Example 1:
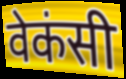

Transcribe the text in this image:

वेकंसी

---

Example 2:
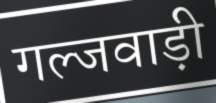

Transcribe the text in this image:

गल्जवाड़ी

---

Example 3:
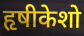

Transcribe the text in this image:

हृषीकेशो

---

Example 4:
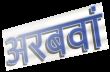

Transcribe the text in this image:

अरबवां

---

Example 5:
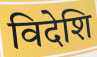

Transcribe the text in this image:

विदेशि